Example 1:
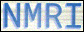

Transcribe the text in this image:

NMRI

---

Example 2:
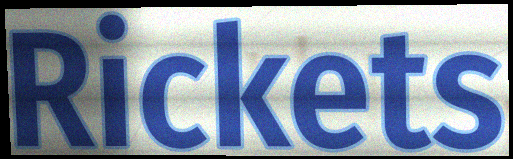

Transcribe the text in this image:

Rickets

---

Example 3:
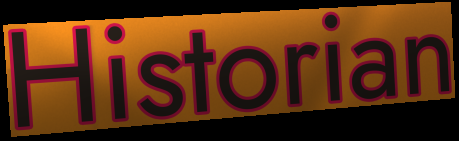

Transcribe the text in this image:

Historian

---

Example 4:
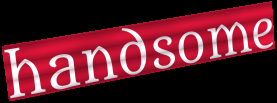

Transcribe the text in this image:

handsome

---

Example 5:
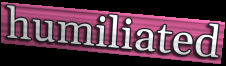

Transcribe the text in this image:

humiliated